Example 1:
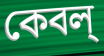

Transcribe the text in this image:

কেবল্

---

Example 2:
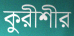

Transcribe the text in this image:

কুরীশীর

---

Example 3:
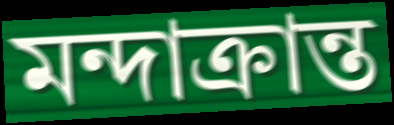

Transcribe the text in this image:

মন্দাক্রান্ত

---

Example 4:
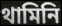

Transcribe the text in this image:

থামিনি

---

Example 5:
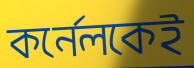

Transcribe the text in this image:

কর্নেলকেই